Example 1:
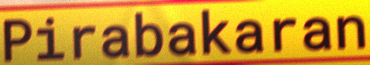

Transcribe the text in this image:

Pirabakaran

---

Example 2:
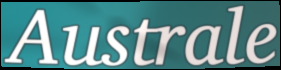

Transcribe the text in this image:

Australe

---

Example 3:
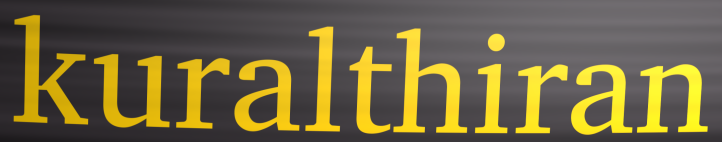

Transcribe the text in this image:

kuralthiran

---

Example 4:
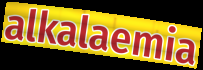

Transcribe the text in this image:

alkalaemia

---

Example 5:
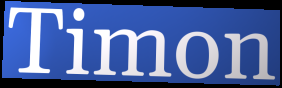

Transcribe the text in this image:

Timon